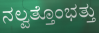
ನಲ್ವತ್ತೊಂಭತ್ತು